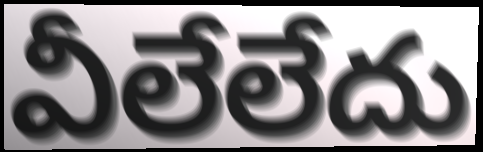
వీలేలేదు